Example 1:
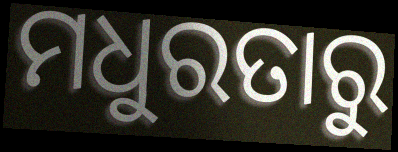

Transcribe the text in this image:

ମଧୁରତାରୁ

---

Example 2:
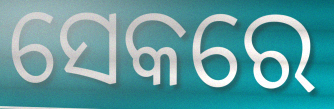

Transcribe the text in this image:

ସେକରେ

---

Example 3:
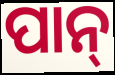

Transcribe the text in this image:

ପାନ୍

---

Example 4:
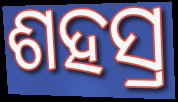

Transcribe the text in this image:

ଶହସ୍ର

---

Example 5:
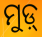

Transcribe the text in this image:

ମୁଡ଼୍